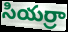
సియర్రా